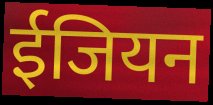
ईजियन